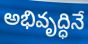
అభివృద్ధినే